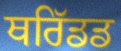
ਥਰਿੱਡਡ